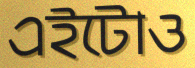
এইটোও